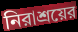
নিরাশ্রয়ের